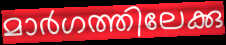
മാർഗത്തിലേക്കു